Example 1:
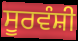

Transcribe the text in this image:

ਸੂਰਵੰਸ਼ੀ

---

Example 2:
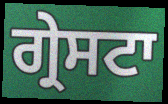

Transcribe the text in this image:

ਗ੍ਰੇਸਟਾ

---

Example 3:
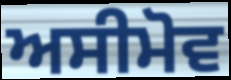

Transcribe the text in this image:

ਅਸੀਮੋਵ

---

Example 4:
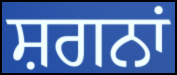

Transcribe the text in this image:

ਸ਼ਗਨਾਂ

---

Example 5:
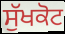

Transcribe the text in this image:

ਸੁੱਖਕੋਟ